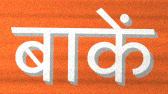
बाकें